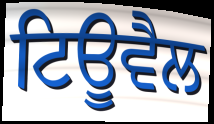
ਟਿਊਵੈਲ